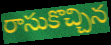
రాసుకొచ్చిన